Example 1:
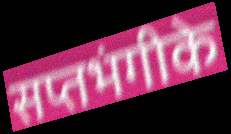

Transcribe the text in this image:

सप्तभंगीके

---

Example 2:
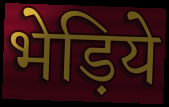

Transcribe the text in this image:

भेड़िये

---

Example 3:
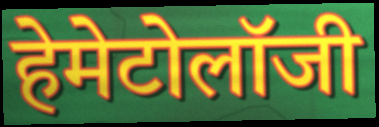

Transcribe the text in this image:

हेमेटोलॉजी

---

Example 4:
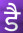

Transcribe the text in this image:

डै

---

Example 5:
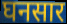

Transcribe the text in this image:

घनसार